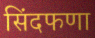
सिंदफणा